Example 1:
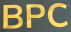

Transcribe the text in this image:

BPC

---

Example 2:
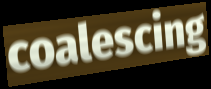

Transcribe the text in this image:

coalescing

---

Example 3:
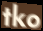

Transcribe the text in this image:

tko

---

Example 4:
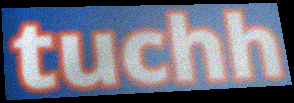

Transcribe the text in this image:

tuchh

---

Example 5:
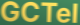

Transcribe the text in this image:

GCTel